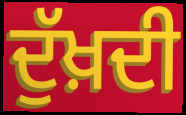
ਦੁੱਖ਼ਦੀ